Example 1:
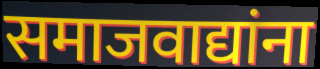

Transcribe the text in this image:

समाजवाद्यांना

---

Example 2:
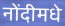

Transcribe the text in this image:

नोंदीमधे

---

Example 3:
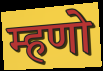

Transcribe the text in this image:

म्हणो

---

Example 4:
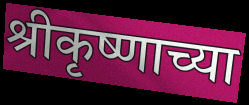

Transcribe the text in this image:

श्रीकृष्णाच्या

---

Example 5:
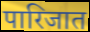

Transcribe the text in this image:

पारिजात